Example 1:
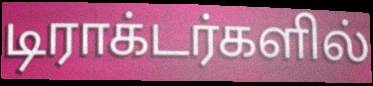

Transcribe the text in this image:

டிராக்டர்களில்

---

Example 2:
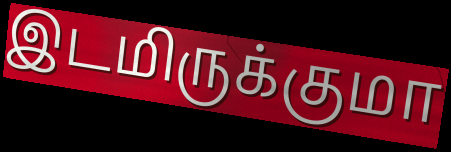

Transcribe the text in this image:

இடமிருக்குமா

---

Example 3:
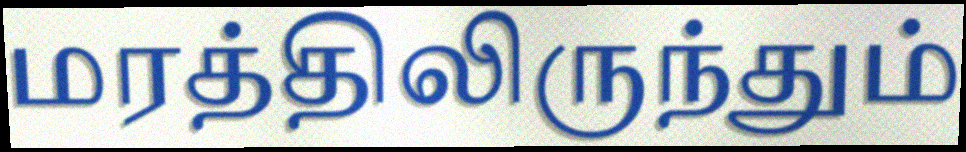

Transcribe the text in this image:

மரத்திலிருந்தும்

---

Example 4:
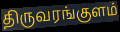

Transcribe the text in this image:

திருவரங்குளம்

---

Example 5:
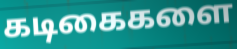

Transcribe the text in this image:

கடிகைகளை